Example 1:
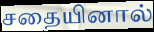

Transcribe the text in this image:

சதையினால்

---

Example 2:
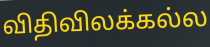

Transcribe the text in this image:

விதிவிலக்கல்ல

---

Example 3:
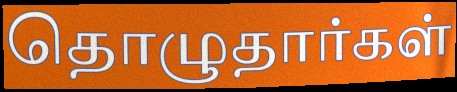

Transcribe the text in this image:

தொழுதார்கள்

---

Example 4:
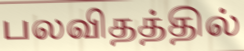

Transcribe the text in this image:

பலவிதத்தில்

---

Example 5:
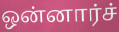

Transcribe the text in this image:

ஒன்னார்ச்